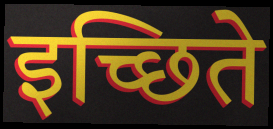
इच्छिते